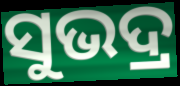
ସୁଭଦ୍ର